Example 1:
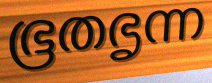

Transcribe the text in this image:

ഭൂതഭൃന്ന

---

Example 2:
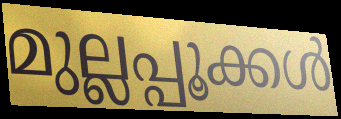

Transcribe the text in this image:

മുല്ലപ്പൂക്കൾ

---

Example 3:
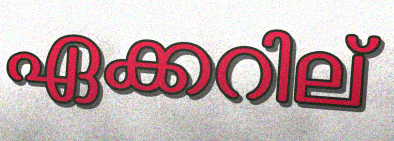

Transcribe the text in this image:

ഏക്കറില്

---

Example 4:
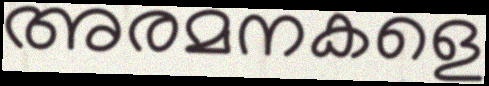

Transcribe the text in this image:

അരമനകളെ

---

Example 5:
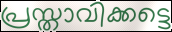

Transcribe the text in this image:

പ്രസ്താവിക്കട്ടെ